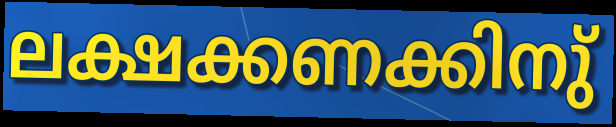
ലക്ഷക്കണക്കിനു്